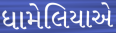
ધામેલિયાએ